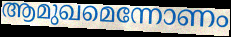
ആമുഖമെന്നോണം